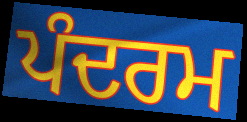
ਪੰਦਰਮ